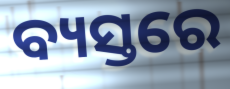
ବ୍ୟସ୍ତରେ